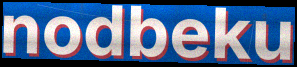
nodbeku